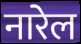
नारेल